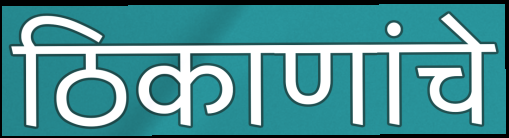
ठिकाणांचे